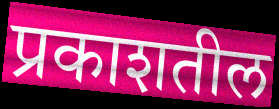
प्रकाशतील